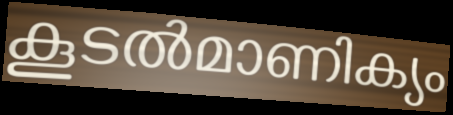
കൂടൽമാണിക്യം